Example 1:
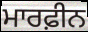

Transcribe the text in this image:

ਮਾਰਫ਼ੀਨ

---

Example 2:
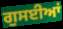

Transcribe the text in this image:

ਗੁਸਈਆਂ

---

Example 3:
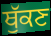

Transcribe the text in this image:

ਥੁੱਕਣ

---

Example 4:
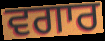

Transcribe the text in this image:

ਵਗਾਰ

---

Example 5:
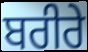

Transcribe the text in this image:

ਬਰੀਰੇ